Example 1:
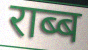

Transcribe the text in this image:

राब्ब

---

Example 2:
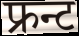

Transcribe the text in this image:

फ्रन्ट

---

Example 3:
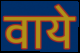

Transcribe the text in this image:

वाये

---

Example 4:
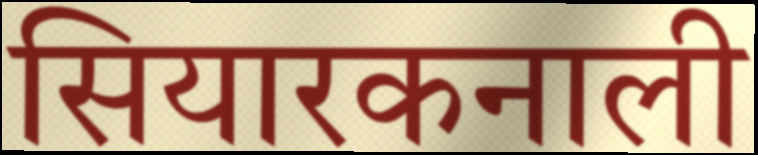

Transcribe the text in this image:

सियारकनाली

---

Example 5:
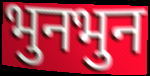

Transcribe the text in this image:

भुनभुन